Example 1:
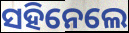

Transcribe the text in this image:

ସହିନେଲେ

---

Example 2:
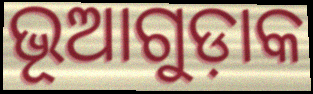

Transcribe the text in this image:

ଭୂଆଗୁଡ଼ାକ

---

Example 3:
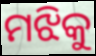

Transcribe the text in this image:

ମଝିକୁ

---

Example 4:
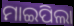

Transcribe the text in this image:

ମାଇପିଲା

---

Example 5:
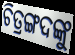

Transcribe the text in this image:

ଚିତ୍ରଙ୍ଗଦଙ୍କୁ